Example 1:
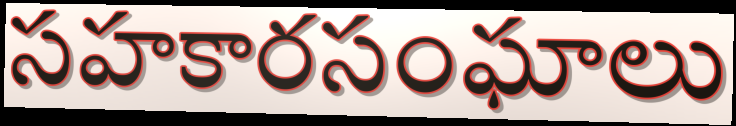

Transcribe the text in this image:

సహకారసంఘాలు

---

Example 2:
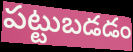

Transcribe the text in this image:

పట్టుబడడం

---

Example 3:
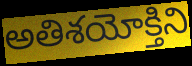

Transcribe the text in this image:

అతిశయోక్తిని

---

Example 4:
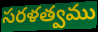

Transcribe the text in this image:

సరళత్వము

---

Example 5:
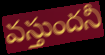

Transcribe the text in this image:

వస్తుందనీ